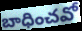
బాధించవో